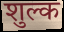
शुल्क